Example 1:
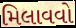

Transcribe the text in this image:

મિલાવવો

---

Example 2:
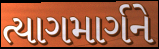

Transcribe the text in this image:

ત્યાગમાર્ગને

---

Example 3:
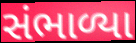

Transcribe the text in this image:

સંભાળ્યા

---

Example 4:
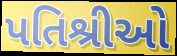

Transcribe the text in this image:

પતિશ્રીઓ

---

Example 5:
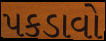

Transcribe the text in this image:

પકડાવો